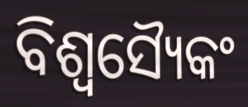
ବିଶ୍ୱସ୍ୟୈକଂ